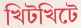
খিটখিটে